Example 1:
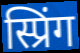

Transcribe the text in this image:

स्प्रिंग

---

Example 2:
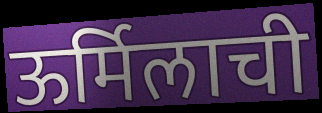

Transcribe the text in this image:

ऊर्मिलाची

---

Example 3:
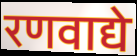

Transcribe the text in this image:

रणवाद्ये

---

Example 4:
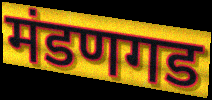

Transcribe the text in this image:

मंडणगड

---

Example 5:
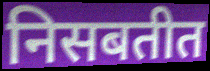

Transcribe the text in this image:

निसबतीत